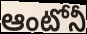
ఆంటోనీ